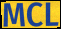
MCL